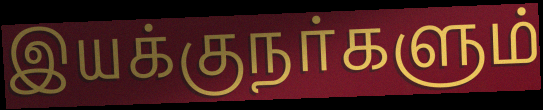
இயக்குநர்களும்